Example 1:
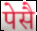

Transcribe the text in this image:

पेसै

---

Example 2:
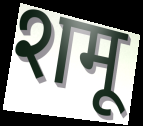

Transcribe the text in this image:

शमू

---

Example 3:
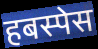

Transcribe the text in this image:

हबस्पेस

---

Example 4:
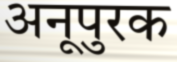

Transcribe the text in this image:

अनूपुरक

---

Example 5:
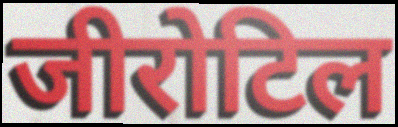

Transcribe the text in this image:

जीरोटिल